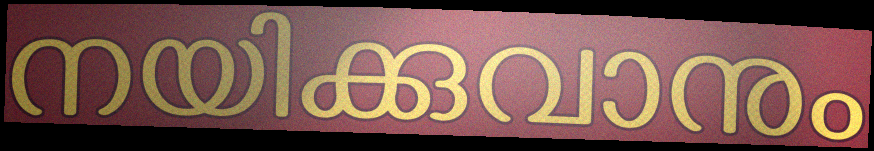
നയിക്കുവാനും